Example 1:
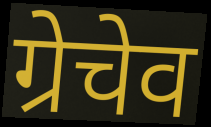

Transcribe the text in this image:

ग्रेचेव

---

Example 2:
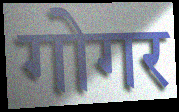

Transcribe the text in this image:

गोगर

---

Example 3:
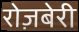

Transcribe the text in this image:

रोज़बेरी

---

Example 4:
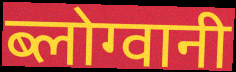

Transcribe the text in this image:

ब्लोग्वानी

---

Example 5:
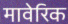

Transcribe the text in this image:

मावेरिक